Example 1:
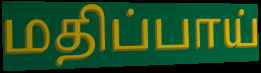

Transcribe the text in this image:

மதிப்பாய்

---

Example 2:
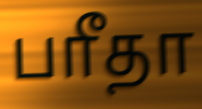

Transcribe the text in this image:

பரீதா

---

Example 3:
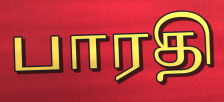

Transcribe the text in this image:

பாரதி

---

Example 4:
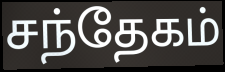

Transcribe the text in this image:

சந்தேகம்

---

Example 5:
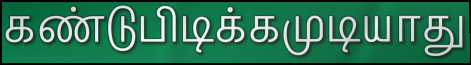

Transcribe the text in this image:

கண்டுபிடிக்கமுடியாது